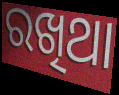
ରଖିଥା